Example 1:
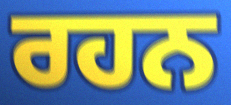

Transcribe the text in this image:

ਰਹਨ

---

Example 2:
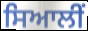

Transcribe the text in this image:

ਸਿਆਲੀਂ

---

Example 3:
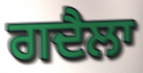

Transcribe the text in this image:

ਗਦੈਲਾ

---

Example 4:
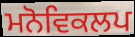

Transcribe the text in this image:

ਮਨੋਵਿਕਲਪ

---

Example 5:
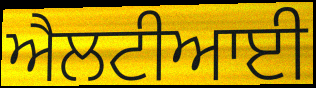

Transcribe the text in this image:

ਐਲਟੀਆਈ